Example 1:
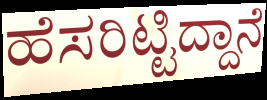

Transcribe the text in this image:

ಹೆಸರಿಟ್ಟಿದ್ದಾನೆ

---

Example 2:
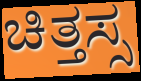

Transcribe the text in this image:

ಚಿತ್ತಸ್ಸ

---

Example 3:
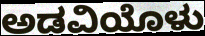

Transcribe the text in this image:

ಅಡವಿಯೊಳು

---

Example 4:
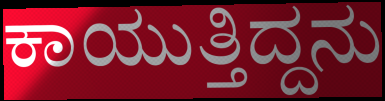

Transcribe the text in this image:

ಕಾಯುತ್ತಿದ್ದನು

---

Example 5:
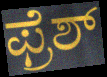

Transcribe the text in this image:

ಫ್ರೆಶ್